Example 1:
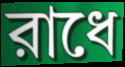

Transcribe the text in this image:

রাধে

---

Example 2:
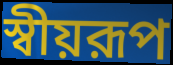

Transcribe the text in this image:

স্বীয়রূপ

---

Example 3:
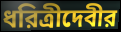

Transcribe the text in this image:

ধরিত্রীদেবীর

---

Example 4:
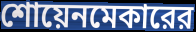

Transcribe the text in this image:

শোয়েনমেকারের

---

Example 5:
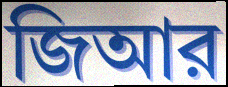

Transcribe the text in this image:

জিআর